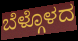
ಬೆಳ್ಗೊಳದ